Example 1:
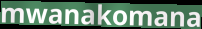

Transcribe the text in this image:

mwanakomana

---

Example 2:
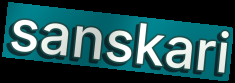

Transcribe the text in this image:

sanskari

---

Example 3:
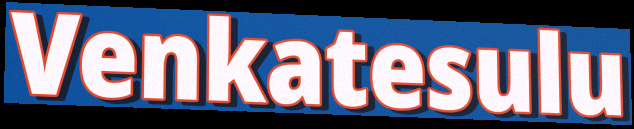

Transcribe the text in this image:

Venkatesulu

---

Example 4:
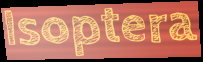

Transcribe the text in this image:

Isoptera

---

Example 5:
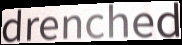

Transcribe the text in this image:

drenched